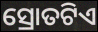
ସ୍ରୋତଟିଏ